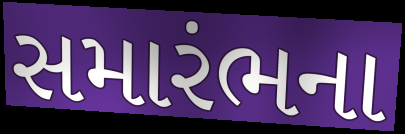
સમારંભના